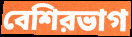
বেশিরভাগ